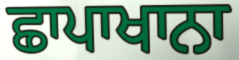
ਛਾਪਾਖਾਨਾ